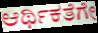
ಆರ್ಥಿಕತೆಗೇ